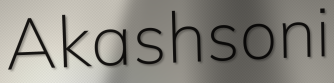
Akashsoni